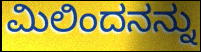
ಮಿಲಿಂದನನ್ನು